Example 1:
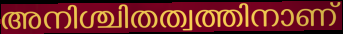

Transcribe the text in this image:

അനിശ്ചിതത്വത്തിനാണ്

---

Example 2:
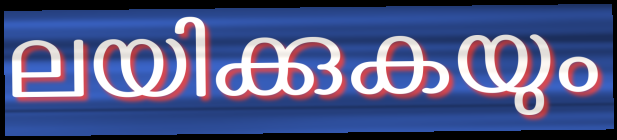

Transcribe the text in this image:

ലയിക്കുകയും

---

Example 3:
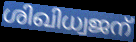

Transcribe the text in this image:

ശിഖിധ്വജന്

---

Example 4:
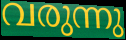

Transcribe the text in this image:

വരുന്നു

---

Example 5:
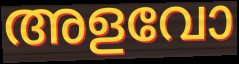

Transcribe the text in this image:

അളവോ